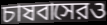
চাষবাসেরও